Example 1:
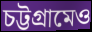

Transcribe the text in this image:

চট্টগ্রামেও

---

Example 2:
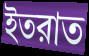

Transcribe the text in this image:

ইতরাত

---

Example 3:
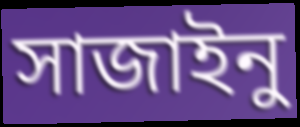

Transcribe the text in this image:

সাজাইনু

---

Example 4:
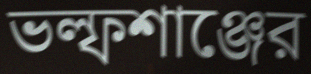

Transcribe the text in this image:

ভল্ফশাঞ্জের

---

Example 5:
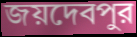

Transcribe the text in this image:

জয়দেবপুর